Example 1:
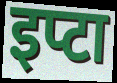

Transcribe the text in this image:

इप्टा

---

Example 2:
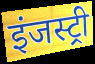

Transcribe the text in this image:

इंजस्ट्री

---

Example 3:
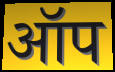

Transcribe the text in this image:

ऑप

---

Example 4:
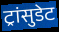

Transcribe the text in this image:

ट्रांसुडेट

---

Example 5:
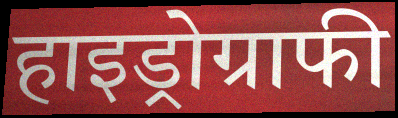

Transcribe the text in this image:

हाइड्रोग्राफी